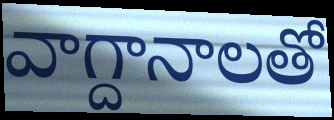
వాగ్దానాలతో